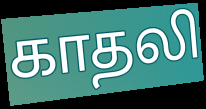
காதலி